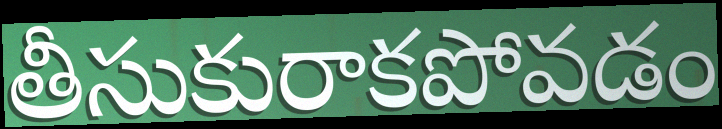
తీసుకురాకపోవడం